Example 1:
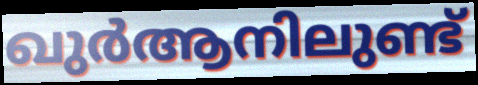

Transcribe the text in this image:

ഖുർആനിലുണ്ട്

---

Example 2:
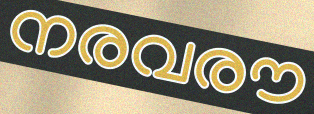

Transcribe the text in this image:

നരവരൗ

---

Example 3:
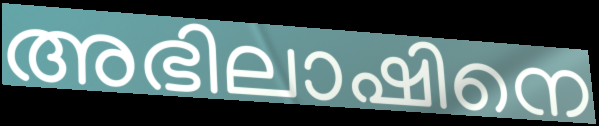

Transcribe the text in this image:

അഭിലാഷിനെ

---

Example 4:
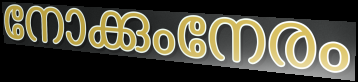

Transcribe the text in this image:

നോക്കുംനേരം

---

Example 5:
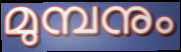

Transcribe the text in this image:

മുമ്പനും